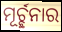
ମୂର୍ଚ୍ଛନାର